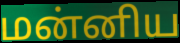
மன்னிய